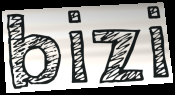
bizi